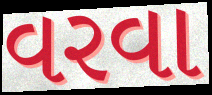
વરવા